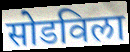
सोडविला